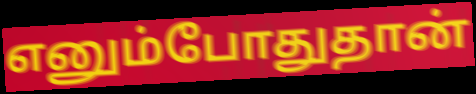
எனும்போதுதான்